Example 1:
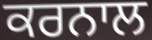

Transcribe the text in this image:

ਕਰਨਾਲ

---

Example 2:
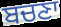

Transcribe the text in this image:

ਬਚਣਾ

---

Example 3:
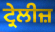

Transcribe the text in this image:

ਟ੍ਰੇਲੀਜ਼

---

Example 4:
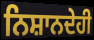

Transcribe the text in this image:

ਨਿਸ਼ਾਨਦੇਹੀ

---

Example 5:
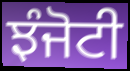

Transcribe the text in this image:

ਝੰਜੋਟੀ